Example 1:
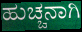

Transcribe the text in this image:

ಹುಚ್ಚನಾಗಿ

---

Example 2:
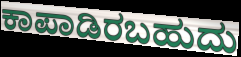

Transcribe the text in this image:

ಕಾಪಾಡಿರಬಹುದು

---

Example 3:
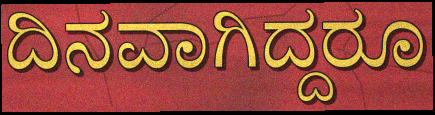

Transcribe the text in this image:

ದಿನವಾಗಿದ್ದರೂ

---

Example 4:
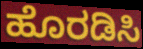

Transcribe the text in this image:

ಹೊರಡಿಸಿ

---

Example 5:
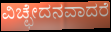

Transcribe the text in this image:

ವಿಚ್ಛೇದನವಾದರೆ